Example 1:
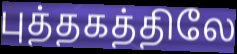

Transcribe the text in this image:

புத்தகத்திலே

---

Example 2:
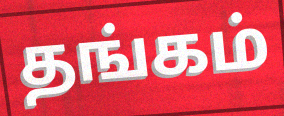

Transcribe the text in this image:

தங்கம்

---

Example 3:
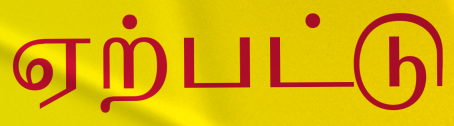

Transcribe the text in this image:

ஏற்பட்டு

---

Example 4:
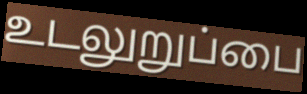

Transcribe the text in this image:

உடலுறுப்பை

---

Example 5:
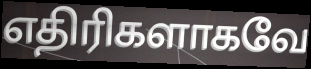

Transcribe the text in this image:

எதிரிகளாகவே